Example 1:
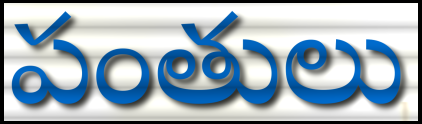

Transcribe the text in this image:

పంతులు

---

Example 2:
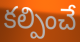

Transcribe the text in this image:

కల్పించే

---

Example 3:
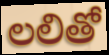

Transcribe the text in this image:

లలితో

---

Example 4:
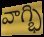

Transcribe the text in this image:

వాగ్భి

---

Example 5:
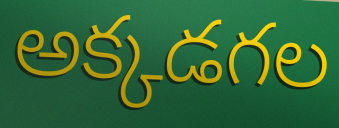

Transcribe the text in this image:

అక్కడగల